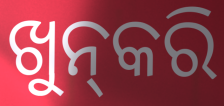
ଖୁନ୍‍କରି